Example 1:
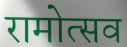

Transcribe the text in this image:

रामोत्सव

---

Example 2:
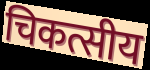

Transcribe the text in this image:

चिकत्सीय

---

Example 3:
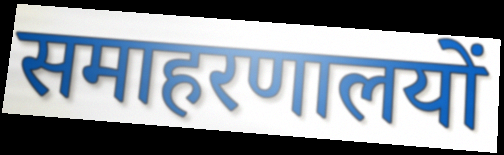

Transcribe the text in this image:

समाहरणालयों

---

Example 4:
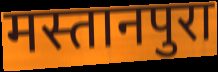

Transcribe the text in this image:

मस्तानपुरा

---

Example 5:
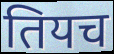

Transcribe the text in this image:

तियच